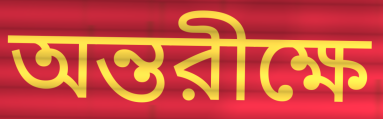
অন্তরীক্ষে